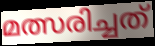
മത്സരിച്ചത്